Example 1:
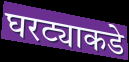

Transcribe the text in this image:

घरट्याकडे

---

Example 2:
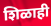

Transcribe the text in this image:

शिळाही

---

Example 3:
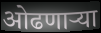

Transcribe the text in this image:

ओढणार्‍या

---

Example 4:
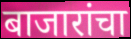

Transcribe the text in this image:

बाजारांचा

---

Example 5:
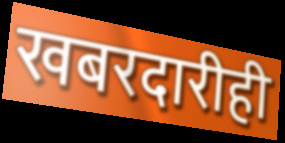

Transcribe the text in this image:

खबरदारीही